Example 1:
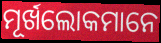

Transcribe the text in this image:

ମୂର୍ଖଲୋକମାନେ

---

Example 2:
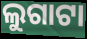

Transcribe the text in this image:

ଲୁଗାଟା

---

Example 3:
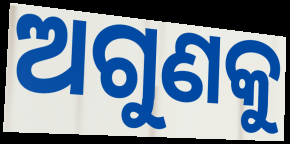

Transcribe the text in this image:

ଅଗୁଣକୁ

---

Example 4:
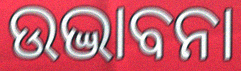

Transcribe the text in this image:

ଉଦ୍ଭାବନା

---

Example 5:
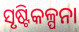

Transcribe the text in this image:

ସୃଷ୍ଟିକଳ୍ପନା